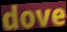
dove